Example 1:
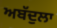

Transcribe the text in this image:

ਅਬੱਦੁਲਾ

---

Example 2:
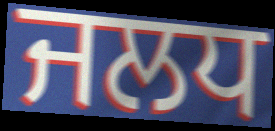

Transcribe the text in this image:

ਜਲਧ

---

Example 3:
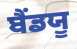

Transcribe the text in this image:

ਬੈਂਡਯੂ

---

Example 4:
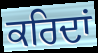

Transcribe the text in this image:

ਕਰਿਦਾਂ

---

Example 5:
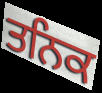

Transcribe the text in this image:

ਤਨਿਕ